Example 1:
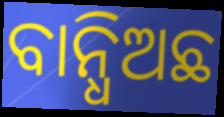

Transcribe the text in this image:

ବାନ୍ଧିଅଛ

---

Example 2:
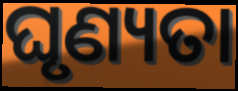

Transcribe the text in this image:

ଘୃଣ୍ୟତା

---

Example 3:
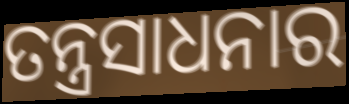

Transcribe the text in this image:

ତନ୍ତ୍ରସାଧନାର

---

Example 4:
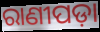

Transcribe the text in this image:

ରାଣୀପଡ଼ା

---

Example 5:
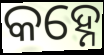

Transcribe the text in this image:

କହ୍ନେ